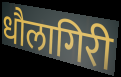
धौलागिरी